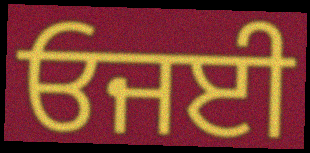
ਓਜਈ